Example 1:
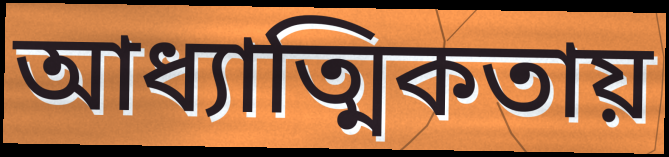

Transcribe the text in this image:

আধ্যাত্মিকতায়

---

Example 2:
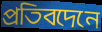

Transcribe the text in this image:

প্রতিবদেনে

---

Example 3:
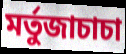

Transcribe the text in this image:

মর্তুজাচাচা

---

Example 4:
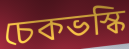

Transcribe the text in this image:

চেকভস্কি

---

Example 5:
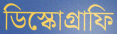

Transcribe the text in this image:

ডিস্কোগ্রাফি